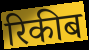
रिकीब